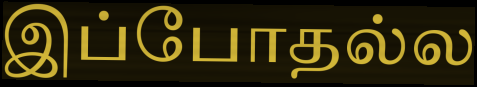
இப்போதல்ல